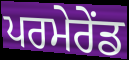
ਪਰਮੇਰੇਂਡ